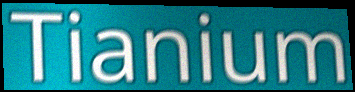
Tianium